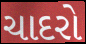
ચાદરો